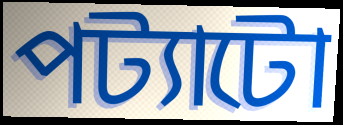
পট্যাটো